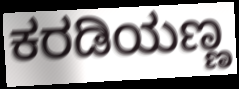
ಕರಡಿಯಣ್ಣ